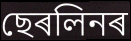
ছেৰলিনৰ